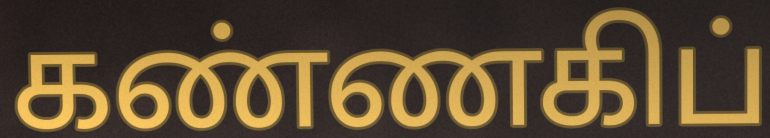
கண்ணகிப்